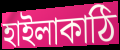
হাইলাকাঠি